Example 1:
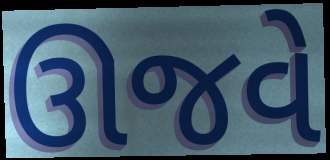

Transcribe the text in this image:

ઊજવે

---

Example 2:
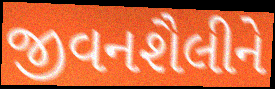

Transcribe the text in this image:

જીવનશૈલીને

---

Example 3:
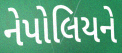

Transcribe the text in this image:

નેપોલિયને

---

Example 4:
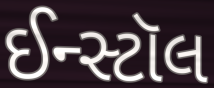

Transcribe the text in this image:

ઈન્સ્ટૉલ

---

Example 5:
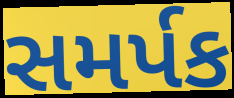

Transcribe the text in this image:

સમર્પક